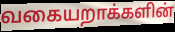
வகையறாக்களின்